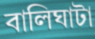
বালিঘাটা